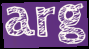
arg